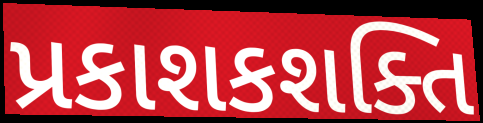
પ્રકાશકશક્તિ